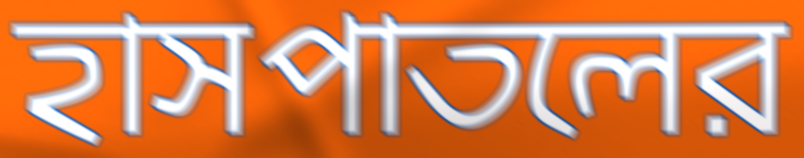
হাসপাতলের